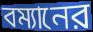
বম্যানের